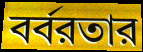
বর্বরতার